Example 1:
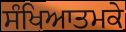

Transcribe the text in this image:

ਸੰਖਿਆਤਮਕੇ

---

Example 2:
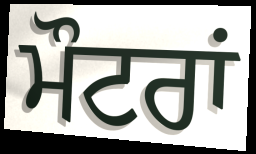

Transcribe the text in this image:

ਮੌਟਰਾਂ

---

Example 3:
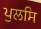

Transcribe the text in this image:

ਪੁਲਸਿ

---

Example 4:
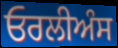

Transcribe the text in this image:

ਓਰਲੀਅੰਸ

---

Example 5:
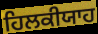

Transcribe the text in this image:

ਹਿਲਕੀਯਾਹ